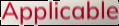
Applicable